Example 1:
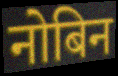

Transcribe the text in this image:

नोबिन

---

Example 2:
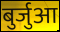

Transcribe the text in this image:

बुर्जुआ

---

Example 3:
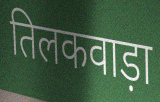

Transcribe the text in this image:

तिलकवाड़ा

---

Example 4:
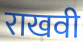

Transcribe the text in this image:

राखवी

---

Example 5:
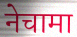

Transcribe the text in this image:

नेचामा